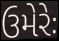
ઉમેરેઃ